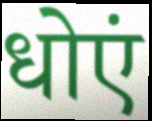
धोएं